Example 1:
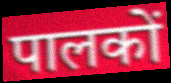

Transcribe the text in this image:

पालकों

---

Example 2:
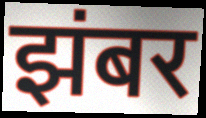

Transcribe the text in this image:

झंबर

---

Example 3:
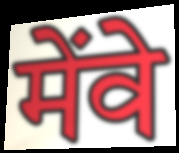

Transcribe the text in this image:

मेंवे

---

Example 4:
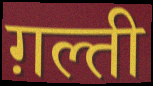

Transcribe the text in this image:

ग़ल्ती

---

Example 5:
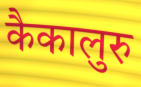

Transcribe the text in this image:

कैकालुरु